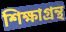
শিক্ষাগ্রন্থ